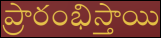
ప్రారంభిస్తాయి